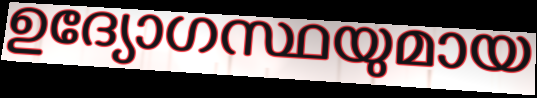
ഉദ്യോഗസ്ഥയുമായ